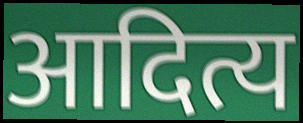
आदित्य